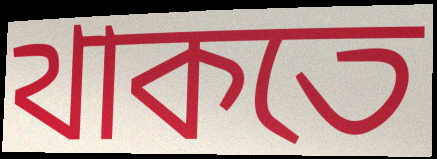
থাকতে